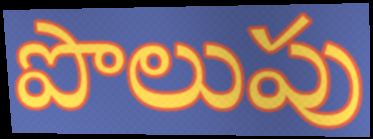
పొలుపు